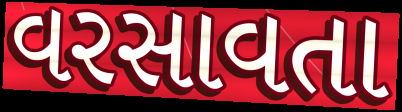
વરસાવતા